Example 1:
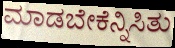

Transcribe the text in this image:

ಮಾಡಬೇಕೆನ್ನಿಸಿತು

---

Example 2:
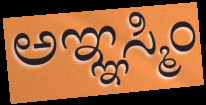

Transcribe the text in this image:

ಅಞ್ಞಸ್ಮಿಂ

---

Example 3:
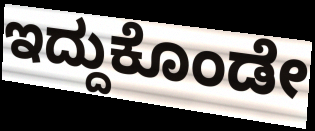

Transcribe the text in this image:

ಇದ್ದುಕೊಂಡೇ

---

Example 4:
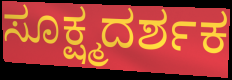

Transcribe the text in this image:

ಸೂಕ್ಷ್ಮದರ್ಶಕ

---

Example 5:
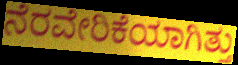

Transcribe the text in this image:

ನೆರವೇರಿಕೆಯಾಗಿತ್ತು